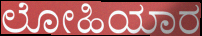
ಲೋಹಿಯಾರ